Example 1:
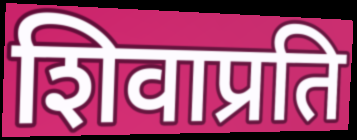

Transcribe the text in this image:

शिवाप्रति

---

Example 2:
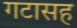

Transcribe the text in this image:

गटासह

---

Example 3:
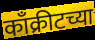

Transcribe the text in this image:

काँक्रीटच्या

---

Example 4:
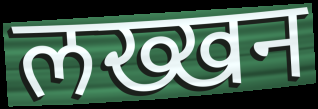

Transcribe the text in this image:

लख्खन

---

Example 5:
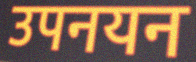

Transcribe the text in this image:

उपनयन